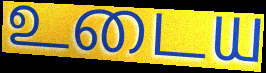
உடைய